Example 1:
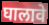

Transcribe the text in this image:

घालावे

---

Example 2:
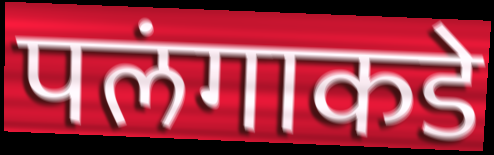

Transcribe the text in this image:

पलंगाकडे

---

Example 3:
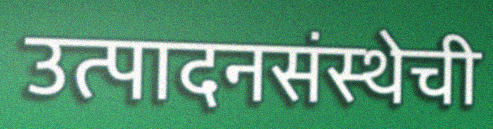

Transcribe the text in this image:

उत्पादनसंस्थेची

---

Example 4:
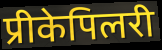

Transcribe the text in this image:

प्रीकेपिलरी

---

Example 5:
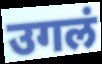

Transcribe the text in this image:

उगलं